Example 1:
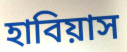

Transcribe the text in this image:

হাবিয়াস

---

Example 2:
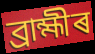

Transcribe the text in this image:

ব্ৰাহ্মীৰ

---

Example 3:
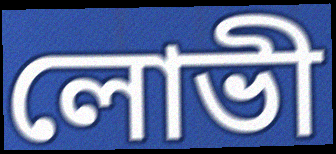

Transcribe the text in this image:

লোভী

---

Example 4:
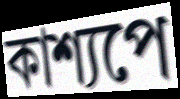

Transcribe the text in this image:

কাশ্যপে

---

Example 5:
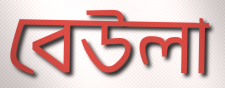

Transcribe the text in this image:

বেউলা